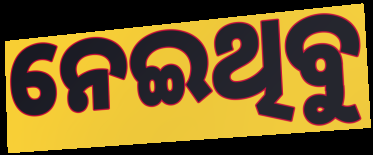
ନେଇଥିବୁ